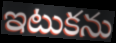
ఇటుకను